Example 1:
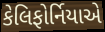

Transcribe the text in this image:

કેલિફોર્નિયાએ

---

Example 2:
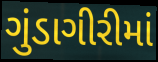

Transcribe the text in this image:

ગુંડાગીરીમાં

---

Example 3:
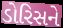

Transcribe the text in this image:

ડોરિસને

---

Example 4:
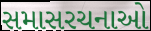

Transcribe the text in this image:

સમાસરચનાઓ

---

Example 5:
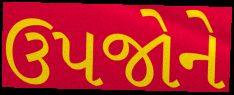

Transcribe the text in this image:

ઉપજોને